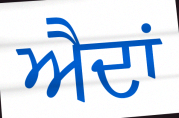
ਐਦਾਂ